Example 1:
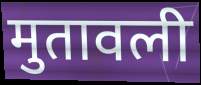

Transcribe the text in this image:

मुतावली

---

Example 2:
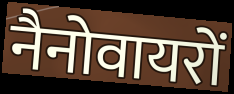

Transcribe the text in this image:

नैनोवायरों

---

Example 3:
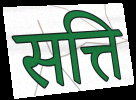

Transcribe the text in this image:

सत्ति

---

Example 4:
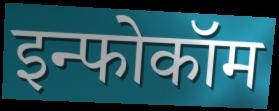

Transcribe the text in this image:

इन्फोकॉम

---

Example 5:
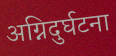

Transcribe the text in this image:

अग्निदुर्घटना